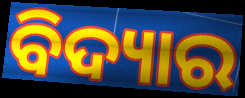
ବିଦ୍ୟାର